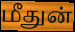
மீதுன்